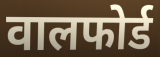
वालफोर्ड